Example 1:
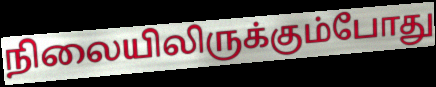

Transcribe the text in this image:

நிலையிலிருக்கும்போது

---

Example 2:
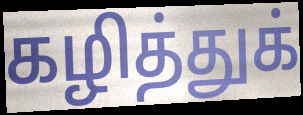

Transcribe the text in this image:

கழித்துக்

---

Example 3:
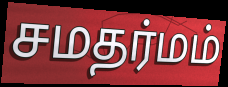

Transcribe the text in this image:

சமதர்மம்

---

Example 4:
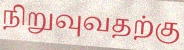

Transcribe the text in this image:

நிறுவுவதற்கு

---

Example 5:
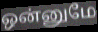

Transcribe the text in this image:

ஒன்னுமே